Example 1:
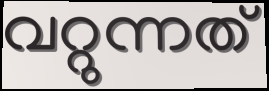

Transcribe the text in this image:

വറ്റുന്നത്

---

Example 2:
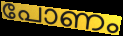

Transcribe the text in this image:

പോണം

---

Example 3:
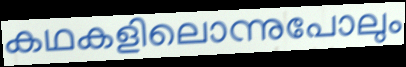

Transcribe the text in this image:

കഥകളിലൊന്നുപോലും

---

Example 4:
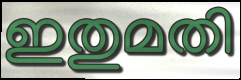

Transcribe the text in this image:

ഇതുമതി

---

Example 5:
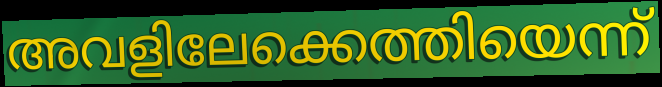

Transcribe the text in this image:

അവളിലേക്കെത്തിയെന്ന്